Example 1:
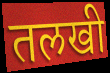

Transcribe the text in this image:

तलखी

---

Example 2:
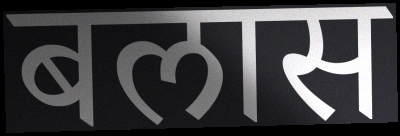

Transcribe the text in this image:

बलास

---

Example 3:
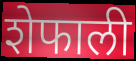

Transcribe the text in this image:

शेफाली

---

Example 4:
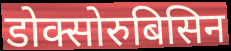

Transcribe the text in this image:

डोक्सोरुबिसिन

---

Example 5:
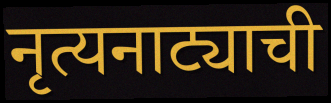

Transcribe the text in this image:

नृत्यनाट्याची